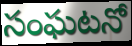
సంఘటనో